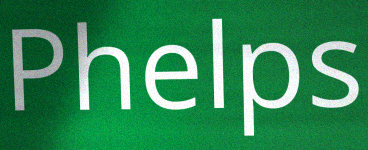
Phelps